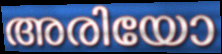
അരിയോ